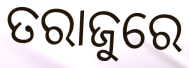
ତରାଜୁରେ